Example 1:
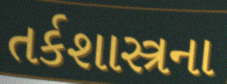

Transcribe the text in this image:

તર્કશાસ્ત્રના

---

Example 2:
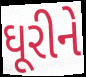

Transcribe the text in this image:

ઘૂરીને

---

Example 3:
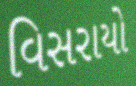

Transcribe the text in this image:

વિસરાયો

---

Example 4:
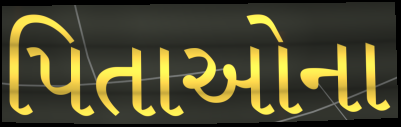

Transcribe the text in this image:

પિતાઓના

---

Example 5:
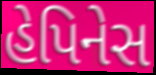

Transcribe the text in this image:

હેપિનેસ